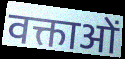
वक्ताओें